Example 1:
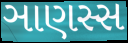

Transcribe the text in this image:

ઞાણસ્સ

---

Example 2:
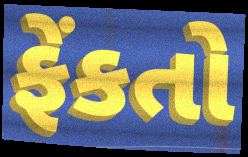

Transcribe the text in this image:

ફેંકતો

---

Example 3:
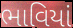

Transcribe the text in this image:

ભાવિયાં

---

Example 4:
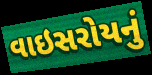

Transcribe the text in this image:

વાઇસરોયનું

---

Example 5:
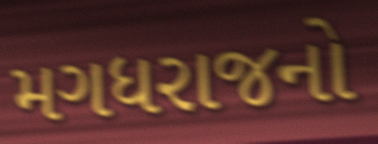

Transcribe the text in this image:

મગધરાજનો